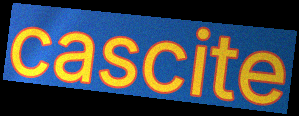
cascite